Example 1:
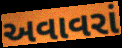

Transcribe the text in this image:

અવાવરાં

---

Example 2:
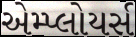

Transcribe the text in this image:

એમ્પ્લોયર્સ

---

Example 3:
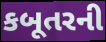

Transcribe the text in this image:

કબૂતરની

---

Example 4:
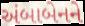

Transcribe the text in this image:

અંબાબેનને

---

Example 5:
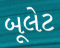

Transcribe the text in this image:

બૂલેટ